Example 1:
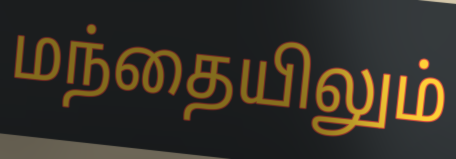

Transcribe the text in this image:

மந்தையிலும்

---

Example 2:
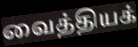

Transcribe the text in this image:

வைத்தியக்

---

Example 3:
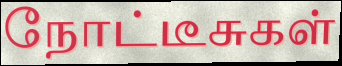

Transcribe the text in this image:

நோட்டீசுகள்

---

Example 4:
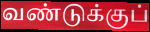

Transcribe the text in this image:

வண்டுக்குப்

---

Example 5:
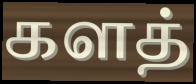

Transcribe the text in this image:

களத்